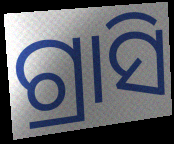
ଗ୍ରାସି